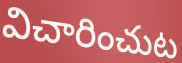
విచారించుట